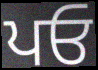
ਪਓ